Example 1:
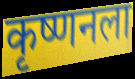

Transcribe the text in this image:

कृष्णनला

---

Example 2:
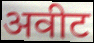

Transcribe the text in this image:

अवीट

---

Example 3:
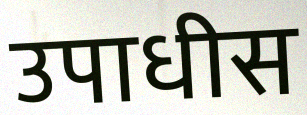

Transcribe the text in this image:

उपाधीस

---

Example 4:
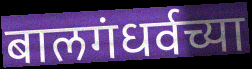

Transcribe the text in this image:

बालगंधर्वच्या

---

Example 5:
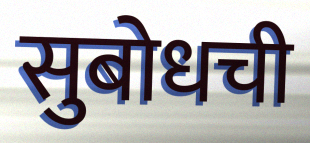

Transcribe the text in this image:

सुबोधची